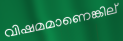
വിഷമമാണെങ്കില്